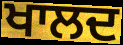
ਖਾਲਦ